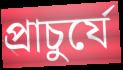
প্রাচুর্যে